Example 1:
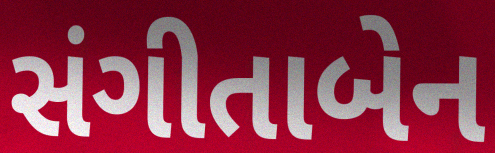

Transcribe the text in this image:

સંગીતાબેન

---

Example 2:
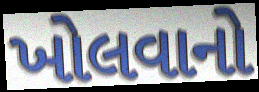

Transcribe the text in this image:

ખોલવાનો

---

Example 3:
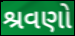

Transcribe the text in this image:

શ્રવણો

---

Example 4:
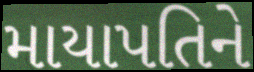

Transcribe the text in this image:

માયાપતિને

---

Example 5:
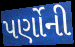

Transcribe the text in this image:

પર્ણોની